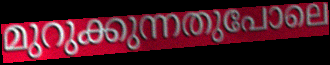
മുറുക്കുന്നതുപോലെ